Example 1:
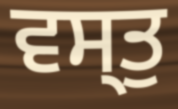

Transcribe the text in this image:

ਵਸ੍ਤੁ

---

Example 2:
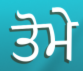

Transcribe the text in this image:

ਤੋਮੇ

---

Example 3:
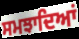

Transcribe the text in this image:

ਸਮਝਾਦਿਆਂ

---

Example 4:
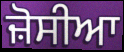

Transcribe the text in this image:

ਜ਼ੋਸੀਆ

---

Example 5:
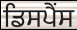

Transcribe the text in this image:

ਡਿਸਪੈਂਸ